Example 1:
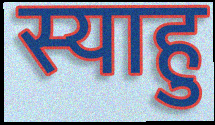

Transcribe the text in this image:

स्याहु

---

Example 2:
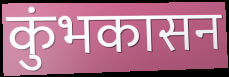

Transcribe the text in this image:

कुंभकासन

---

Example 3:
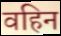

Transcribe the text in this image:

वहिन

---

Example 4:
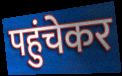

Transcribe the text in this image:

पहुंचेकर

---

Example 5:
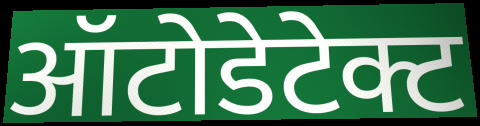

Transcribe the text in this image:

ऑटोडेटेक्ट